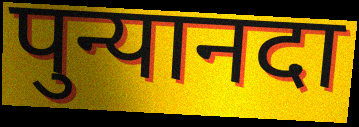
पुन्यानदा